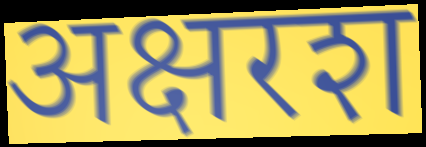
अक्षरश